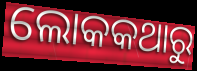
ଲୋକକଥାରୁ